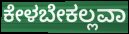
ಕೇಳಬೇಕಲ್ಲವಾ